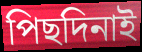
পিছদিনাই